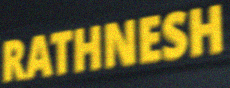
RATHNESH